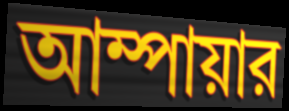
আম্পায়ার